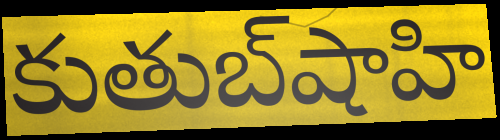
కుతుబ్‌షాహి